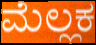
ಮೆಲ್ಲಕ